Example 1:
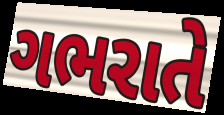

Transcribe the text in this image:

ગભરાતે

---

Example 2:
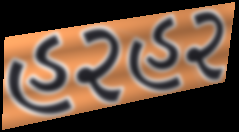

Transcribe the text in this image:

હરહર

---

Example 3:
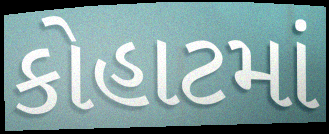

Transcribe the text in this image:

કોહાટમાં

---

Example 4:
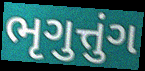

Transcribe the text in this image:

ભૃગુત્તુંગ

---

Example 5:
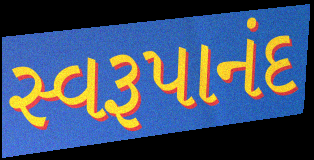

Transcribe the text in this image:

સ્વરૂપાનંદ